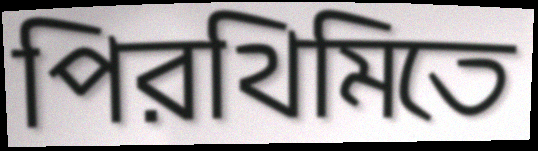
পিরথিমিতে